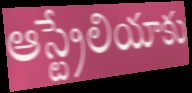
ఆస్ట్రేలియాకు